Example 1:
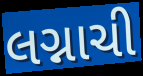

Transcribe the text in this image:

લગ્નાચી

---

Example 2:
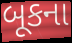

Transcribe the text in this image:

બૂકના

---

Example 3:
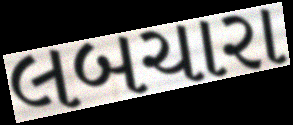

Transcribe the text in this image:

લબચારા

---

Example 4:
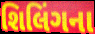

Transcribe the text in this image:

શિલિંગના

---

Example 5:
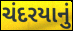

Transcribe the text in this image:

ચંદરયાનું